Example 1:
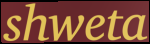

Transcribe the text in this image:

shweta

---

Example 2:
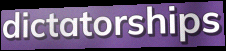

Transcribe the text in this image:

dictatorships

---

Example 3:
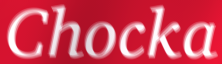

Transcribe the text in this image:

Chocka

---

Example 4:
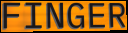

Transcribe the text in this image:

FINGER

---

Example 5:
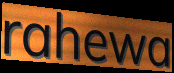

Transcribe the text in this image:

rahewa